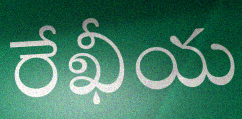
రేఖీయ